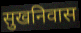
सुखनिवास